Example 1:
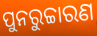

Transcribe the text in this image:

ପୁନରୁଚ୍ଚାରଣ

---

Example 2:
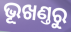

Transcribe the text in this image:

ଭୂଖଣ୍ତରୁ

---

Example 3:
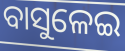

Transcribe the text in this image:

ବାସୁଳେଇ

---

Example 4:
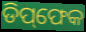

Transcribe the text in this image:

ଡିପ୍‌ଫେକ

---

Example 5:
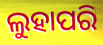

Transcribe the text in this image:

ଲୁହାପରି